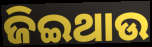
ଜିଇଥାଉ